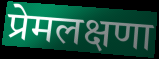
प्रेमलक्षणा